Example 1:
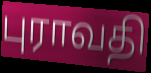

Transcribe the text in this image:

புராவதி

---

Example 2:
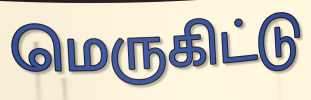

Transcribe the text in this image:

மெருகிட்டு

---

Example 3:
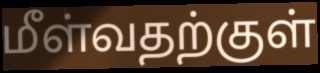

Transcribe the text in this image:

மீள்வதற்குள்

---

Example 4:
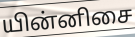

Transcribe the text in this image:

யின்னிசை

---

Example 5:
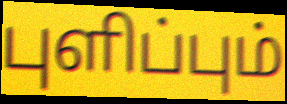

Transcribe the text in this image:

புளிப்பும்